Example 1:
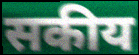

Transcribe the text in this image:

सकीय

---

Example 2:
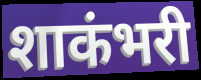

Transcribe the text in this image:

शाकंभरी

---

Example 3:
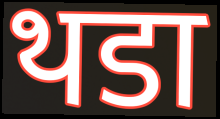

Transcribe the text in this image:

थडा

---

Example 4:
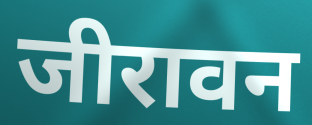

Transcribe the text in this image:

जीरावन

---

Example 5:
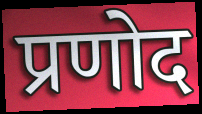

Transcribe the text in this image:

प्रणोद